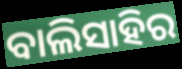
ବାଲିସାହିର